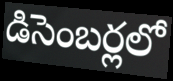
డిసెంబర్లలో